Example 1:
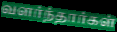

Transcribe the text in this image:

வளர்ந்தார்கள்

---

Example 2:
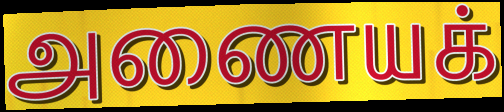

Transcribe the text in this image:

அணையக்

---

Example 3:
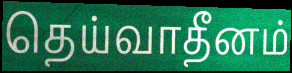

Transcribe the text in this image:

தெய்வாதீனம்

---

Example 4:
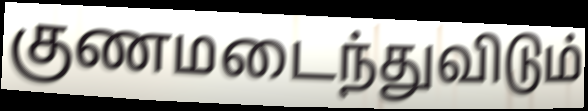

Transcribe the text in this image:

குணமடைந்துவிடும்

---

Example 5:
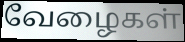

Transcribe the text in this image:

வேழைகள்